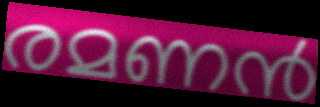
രമണൻ